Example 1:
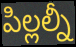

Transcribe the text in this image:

పిల్లల్నీ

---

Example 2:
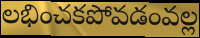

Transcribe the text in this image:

లభించకపోవడంవల్ల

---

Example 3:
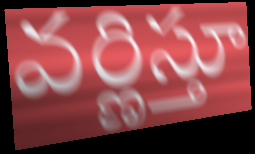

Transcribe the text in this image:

వర్ణిస్తూ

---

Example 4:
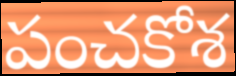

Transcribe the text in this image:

పంచకోశ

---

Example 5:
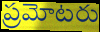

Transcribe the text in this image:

ప్రమోటరు